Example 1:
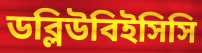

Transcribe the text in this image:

ডব্লিউবিইসিসি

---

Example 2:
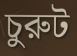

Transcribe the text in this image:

চুরুট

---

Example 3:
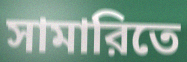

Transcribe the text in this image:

সামারিতে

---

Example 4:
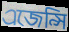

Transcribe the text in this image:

এজেন্সি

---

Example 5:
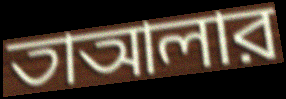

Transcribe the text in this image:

তাআলার